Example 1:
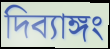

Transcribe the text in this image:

দিব্যাঙ্গং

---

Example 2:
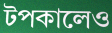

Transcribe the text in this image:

টপকালেও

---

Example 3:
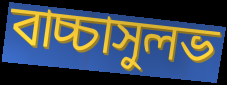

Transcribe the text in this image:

বাচ্চাসুলভ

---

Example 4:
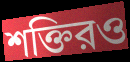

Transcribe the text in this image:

শক্তিরও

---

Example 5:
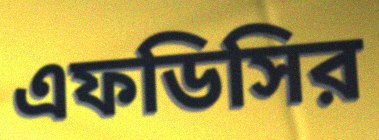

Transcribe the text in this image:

এফডিসির